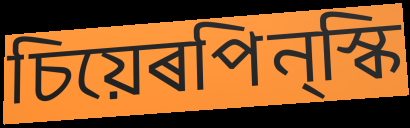
চিয়েৰপিন্‌স্কি